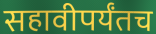
सहावीपर्यंतच